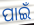
ପାଇଁ